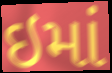
ઇમાં